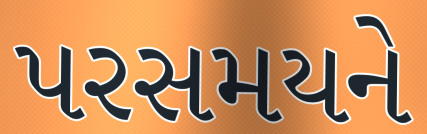
પરસમયને